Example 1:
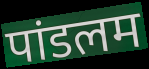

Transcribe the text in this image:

पांडलम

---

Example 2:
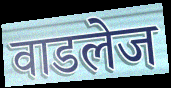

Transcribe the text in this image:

वाडलेज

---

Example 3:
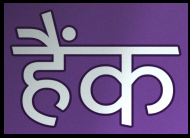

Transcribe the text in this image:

हैंक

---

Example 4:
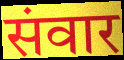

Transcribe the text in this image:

संवार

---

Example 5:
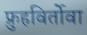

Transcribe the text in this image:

फ्रुहविर्तोवा